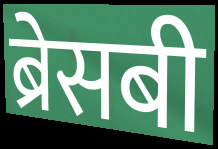
ब्रेसबी